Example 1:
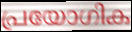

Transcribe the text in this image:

പ്രയോഗിക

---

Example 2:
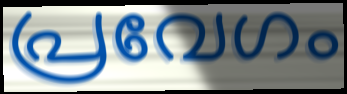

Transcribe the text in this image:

പ്രവേഗം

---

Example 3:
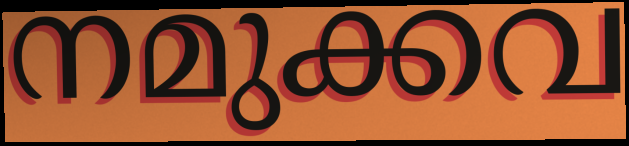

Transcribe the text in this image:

നമുക്കവ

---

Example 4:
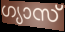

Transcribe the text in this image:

ഗ്യാസ്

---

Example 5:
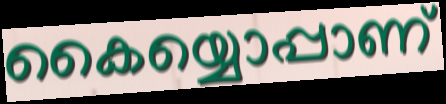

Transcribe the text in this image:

കൈയ്യൊപ്പാണ്